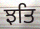
ਝਤਿ